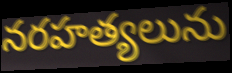
నరహత్యలును